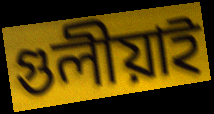
গুলীয়াই